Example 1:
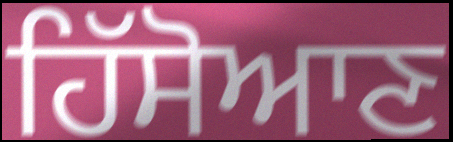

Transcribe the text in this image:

ਹਿੱਸੋਆਣ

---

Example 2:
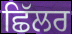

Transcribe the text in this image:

ਛਿੱਲਰ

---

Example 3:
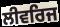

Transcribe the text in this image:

ਲੀਵਰਿਜ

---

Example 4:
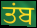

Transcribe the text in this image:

ਤਂਬ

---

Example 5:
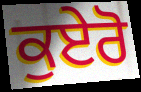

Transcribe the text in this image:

ਕੁਏਰੋ